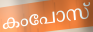
കംപോസ്